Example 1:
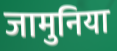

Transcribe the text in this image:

जामुनिया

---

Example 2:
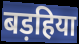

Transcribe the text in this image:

बड़हिया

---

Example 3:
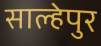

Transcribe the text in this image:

साल्हेपुर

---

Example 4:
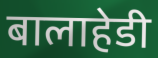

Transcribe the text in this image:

बालाहेडी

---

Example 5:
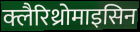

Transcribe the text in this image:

क्लैरिथ्रोमाइसिन